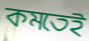
কমতেই